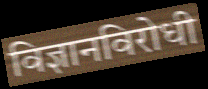
विज्ञानविरोधी